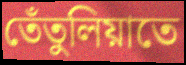
তেঁতুলিয়াতে